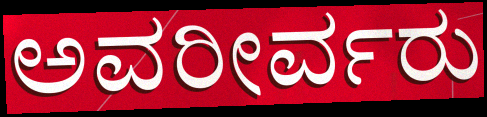
ಅವರೀರ್ವರು